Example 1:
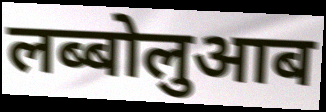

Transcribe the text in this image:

लब्बोलुआब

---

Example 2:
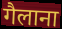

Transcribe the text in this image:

गैलाना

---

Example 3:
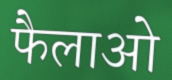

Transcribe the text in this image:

फैलाओ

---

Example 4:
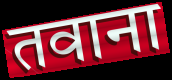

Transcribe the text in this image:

तवाना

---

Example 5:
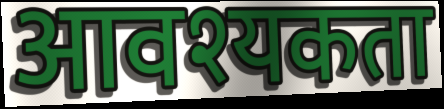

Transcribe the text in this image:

आवश्यकता